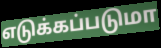
எடுக்கப்படுமா